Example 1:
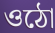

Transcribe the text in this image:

ওঠো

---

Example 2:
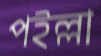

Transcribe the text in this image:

পইল্লা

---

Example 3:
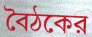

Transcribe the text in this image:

বৈঠকের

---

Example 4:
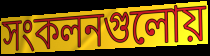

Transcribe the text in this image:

সংকলনগুলোয়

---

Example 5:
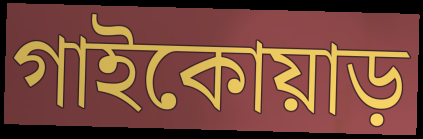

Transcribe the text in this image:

গাইকোয়াড়